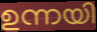
ഉന്നയി